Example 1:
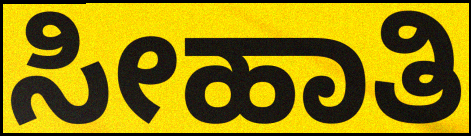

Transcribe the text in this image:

ಸೀಹಾತಿ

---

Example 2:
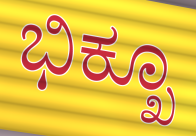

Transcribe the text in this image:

ಭಿಕ್ಖೂ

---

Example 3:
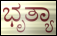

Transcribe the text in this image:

ಭೃತ್ಯಾ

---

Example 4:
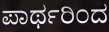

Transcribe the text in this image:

ಪಾರ್ಥರಿಂದ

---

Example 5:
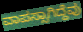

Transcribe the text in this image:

ವಾಪಸ್ಸಾಗಿದ್ದೆವು